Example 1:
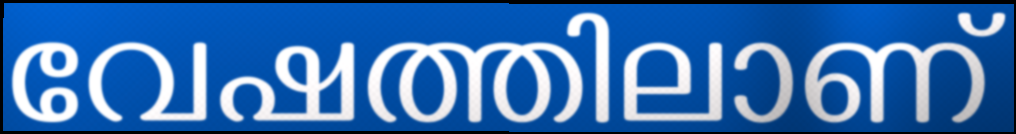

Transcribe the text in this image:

വേഷത്തിലാണ്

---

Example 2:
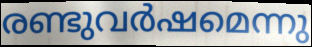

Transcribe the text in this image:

രണ്ടുവർഷമെന്നു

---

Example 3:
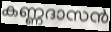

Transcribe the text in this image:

കണ്ണദാസൻ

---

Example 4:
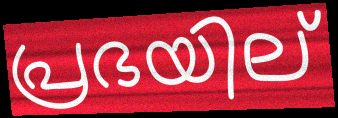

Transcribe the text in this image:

പ്രഭയില്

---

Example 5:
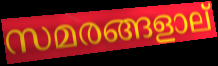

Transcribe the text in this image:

സമരങ്ങളാല്